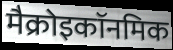
मैक्रोइकॉनमिक